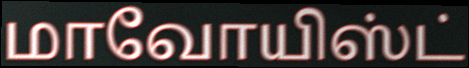
மாவோயிஸ்ட்